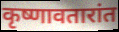
कृष्णावतारांत